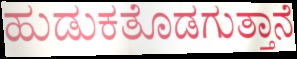
ಹುಡುಕತೊಡಗುತ್ತಾನೆ